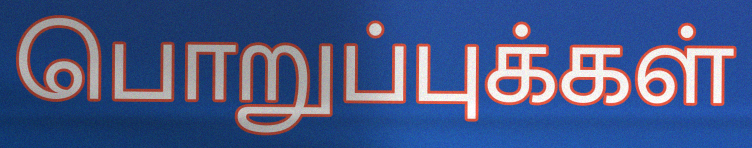
பொறுப்புக்கள்